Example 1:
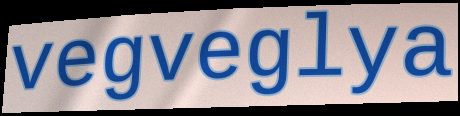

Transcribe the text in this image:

vegveglya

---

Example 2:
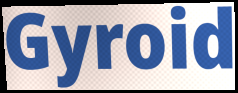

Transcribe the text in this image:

Gyroid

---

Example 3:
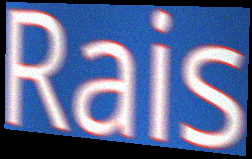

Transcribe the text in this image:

Rais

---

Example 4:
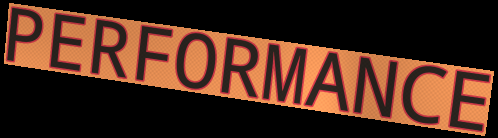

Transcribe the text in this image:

PERFORMANCE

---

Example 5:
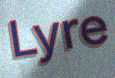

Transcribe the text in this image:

Lyre